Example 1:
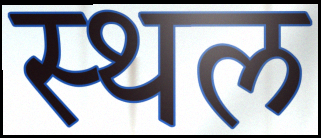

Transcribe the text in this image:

स्थल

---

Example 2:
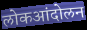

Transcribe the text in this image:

लोकआंदोलन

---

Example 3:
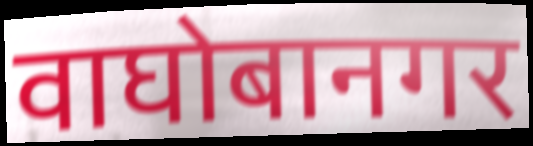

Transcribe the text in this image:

वाघोबानगर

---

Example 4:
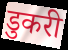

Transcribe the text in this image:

डुकरी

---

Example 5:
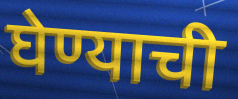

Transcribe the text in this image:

घेण्याची